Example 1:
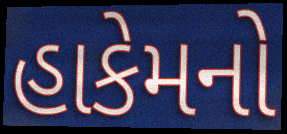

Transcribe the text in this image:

હાકેમનો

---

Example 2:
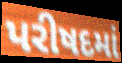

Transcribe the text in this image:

પરીષદમાં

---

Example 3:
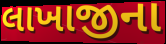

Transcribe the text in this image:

લાખાજીના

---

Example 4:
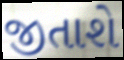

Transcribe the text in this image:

જીતાશે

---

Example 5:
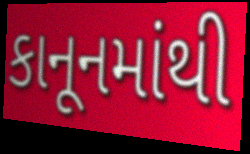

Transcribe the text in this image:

કાનૂનમાંથી